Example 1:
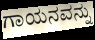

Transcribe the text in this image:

ಗಾಯನವನ್ನು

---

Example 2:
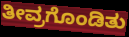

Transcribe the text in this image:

ತೀವ್ರಗೊಂಡಿತು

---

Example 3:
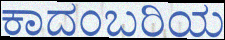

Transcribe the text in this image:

ಕಾದಂಬರಿಯ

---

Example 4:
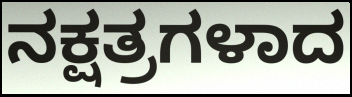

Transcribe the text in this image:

ನಕ್ಷತ್ರಗಳಾದ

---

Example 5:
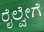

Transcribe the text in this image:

ರೈಲ್ವೇಗೆ